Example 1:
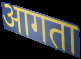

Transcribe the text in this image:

आगता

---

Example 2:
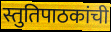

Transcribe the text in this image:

स्तुतिपाठकांची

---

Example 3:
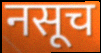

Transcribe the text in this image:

नसूच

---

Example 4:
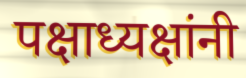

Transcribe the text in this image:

पक्षाध्यक्षांनी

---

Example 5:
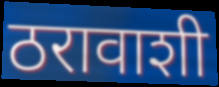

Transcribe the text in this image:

ठरावाशी